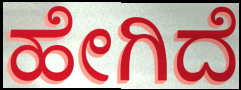
ಹೇಗಿದೆ